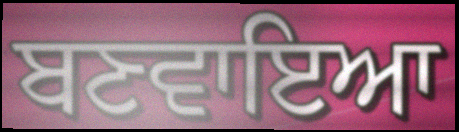
ਬਣਵਾਇਆ